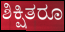
ಶಿಕ್ಷಿತರೂ